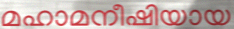
മഹാമനീഷിയായ